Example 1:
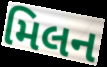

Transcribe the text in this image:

મિલન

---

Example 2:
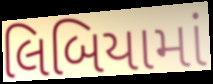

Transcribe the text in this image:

લિબિયામાં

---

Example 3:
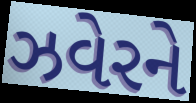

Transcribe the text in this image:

ઝવેરને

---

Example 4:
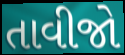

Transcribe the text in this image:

તાવીજો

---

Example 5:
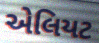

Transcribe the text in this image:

એલિયટ